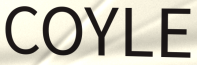
COYLE